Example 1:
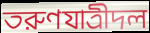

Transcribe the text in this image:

তরুণযাত্রীদল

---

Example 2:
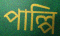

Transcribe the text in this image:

পাল্পি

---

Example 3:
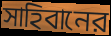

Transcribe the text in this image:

সাহিবানের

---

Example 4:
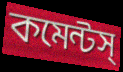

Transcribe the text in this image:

কমেন্টস্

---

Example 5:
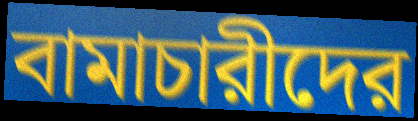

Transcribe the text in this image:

বামাচারীদের